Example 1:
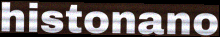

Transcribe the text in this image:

histonano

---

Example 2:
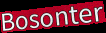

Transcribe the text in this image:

Bosonter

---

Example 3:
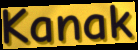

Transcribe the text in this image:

Kanak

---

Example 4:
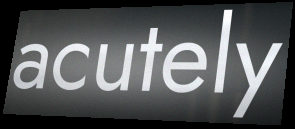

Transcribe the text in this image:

acutely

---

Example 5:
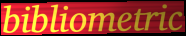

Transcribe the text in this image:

bibliometric